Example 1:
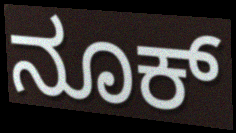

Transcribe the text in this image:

ನೂಕ್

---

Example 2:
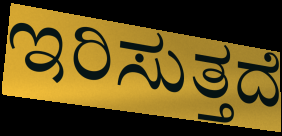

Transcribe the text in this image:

ಇರಿಸುತ್ತದೆ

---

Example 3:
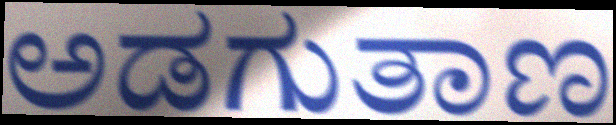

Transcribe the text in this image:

ಅಡಗುತಾಣ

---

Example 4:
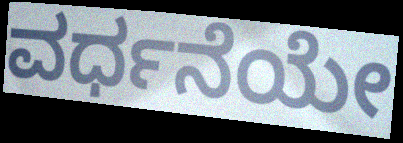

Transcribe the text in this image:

ವರ್ಧನೆಯೇ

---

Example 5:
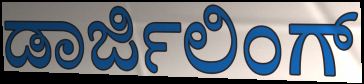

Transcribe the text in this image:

ಡಾರ್ಜಿಲಿಂಗ್